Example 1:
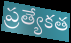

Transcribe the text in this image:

ప్రత్యేకత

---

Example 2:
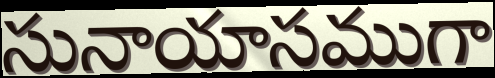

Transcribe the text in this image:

సునాయాసముగా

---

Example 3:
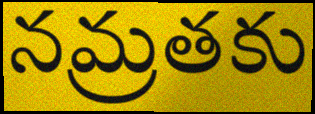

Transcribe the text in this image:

నమ్రతకు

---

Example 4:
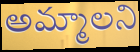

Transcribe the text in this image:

అమ్మాలని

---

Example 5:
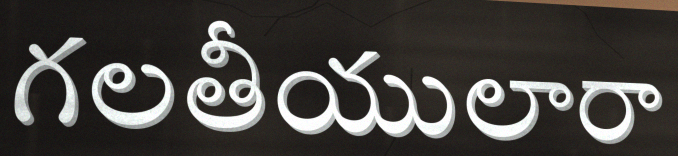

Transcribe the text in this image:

గలతీయులారా